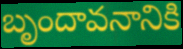
బృందావనానికి